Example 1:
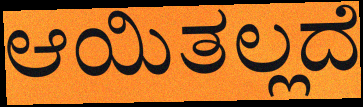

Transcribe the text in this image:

ಆಯಿತಲ್ಲದೆ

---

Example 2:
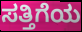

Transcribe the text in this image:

ಸತ್ತಿಗೆಯ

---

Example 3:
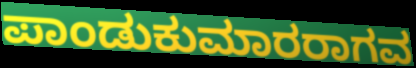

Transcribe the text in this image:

ಪಾಂಡುಕುಮಾರರಾಗವ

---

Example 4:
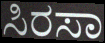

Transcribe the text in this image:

ಸಿರಸಾ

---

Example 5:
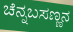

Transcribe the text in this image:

ಚೆನ್ನಬಸಣ್ಣನ